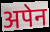
अपेन